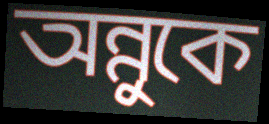
অন্নুকে